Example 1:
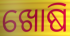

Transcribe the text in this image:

ଖୋଷି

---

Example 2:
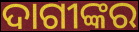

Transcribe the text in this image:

ଦାଗୀଙ୍କର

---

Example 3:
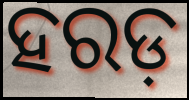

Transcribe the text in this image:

ହରଡ଼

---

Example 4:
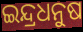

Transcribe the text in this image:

ଇନ୍ଦ୍ରଧନୁଷ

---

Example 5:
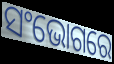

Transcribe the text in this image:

ସଂଭୋଗରେ